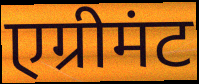
एग्रीमंट